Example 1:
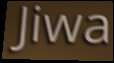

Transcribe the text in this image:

Jiwa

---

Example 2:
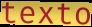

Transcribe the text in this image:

texto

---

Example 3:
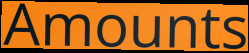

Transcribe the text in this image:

Amounts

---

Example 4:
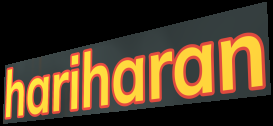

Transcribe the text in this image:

hariharan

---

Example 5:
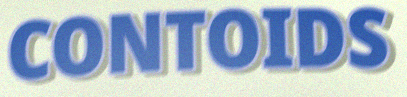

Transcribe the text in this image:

CONTOIDS